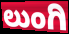
ಲುಂಗಿ